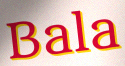
Bala